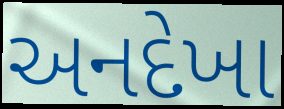
અનદેખા